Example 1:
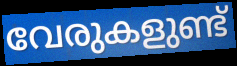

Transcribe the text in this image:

വേരുകളുണ്ട്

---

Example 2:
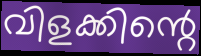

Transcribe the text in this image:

വിളക്കിന്റെ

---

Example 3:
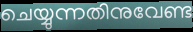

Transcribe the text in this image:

ചെയ്യുന്നതിനുവേണ്ട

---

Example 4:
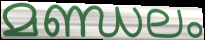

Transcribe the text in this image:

മണ്ഡലം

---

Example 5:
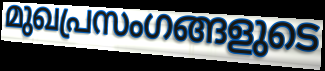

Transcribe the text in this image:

മുഖപ്രസംഗങ്ങളുടെ